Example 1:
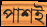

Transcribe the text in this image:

পাশই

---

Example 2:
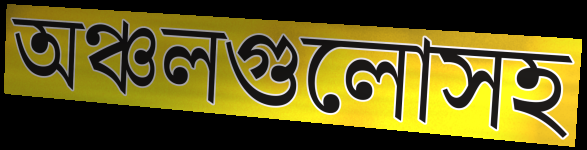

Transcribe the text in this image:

অঞ্চলগুলোসহ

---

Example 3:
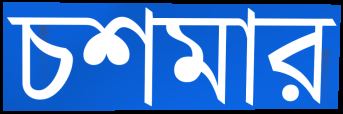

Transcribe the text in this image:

চশমার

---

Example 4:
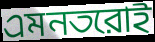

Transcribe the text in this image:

এমনতরোই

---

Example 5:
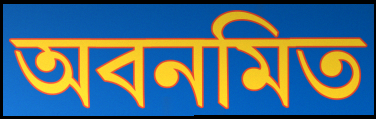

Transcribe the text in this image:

অবনমিত